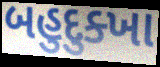
બહુદુક્ખા